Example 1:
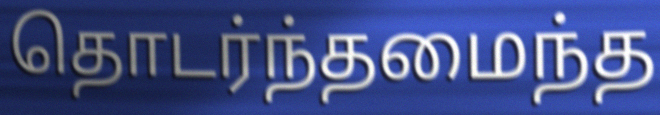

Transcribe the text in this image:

தொடர்ந்தமைந்த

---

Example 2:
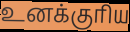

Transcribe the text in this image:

உனக்குரிய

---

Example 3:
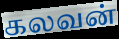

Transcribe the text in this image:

கலவன்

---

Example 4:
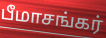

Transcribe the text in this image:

பீமாசங்கர்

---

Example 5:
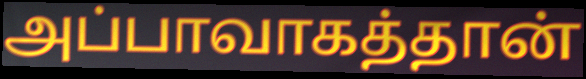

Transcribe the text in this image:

அப்பாவாகத்தான்